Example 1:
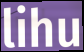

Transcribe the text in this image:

lihu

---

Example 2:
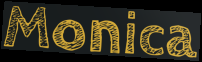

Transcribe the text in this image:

Monica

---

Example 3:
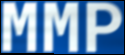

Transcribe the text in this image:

MMP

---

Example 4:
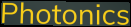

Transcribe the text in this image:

Photonics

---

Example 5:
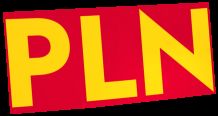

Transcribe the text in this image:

PLN